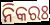
ନିକରଃ